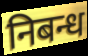
निबन्ध